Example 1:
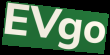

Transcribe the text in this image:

EVgo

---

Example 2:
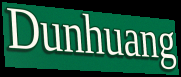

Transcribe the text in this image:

Dunhuang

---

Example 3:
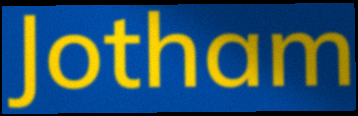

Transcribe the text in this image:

Jotham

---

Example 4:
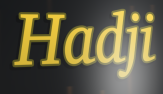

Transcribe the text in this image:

Hadji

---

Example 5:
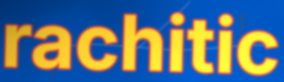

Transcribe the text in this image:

rachitic